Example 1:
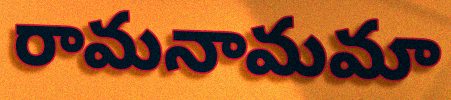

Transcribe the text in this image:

రామనామమా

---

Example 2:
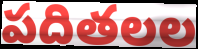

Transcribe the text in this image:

పదితలల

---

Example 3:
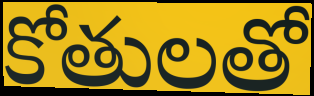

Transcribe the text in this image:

కోతులతో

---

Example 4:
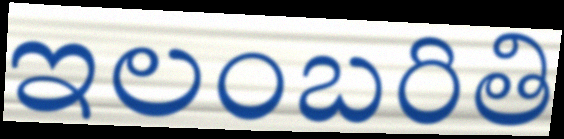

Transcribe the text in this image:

ఇలంబరితి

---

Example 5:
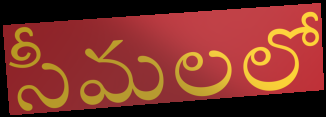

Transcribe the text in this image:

సీమలలో